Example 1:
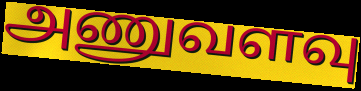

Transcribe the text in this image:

அணுவளவு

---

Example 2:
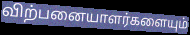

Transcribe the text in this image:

விற்பனையாளர்களையும்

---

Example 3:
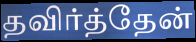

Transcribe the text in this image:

தவிர்த்தேன்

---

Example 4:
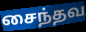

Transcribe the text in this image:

சைந்தவ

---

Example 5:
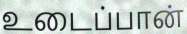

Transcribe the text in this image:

உடைப்பான்